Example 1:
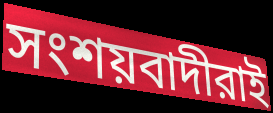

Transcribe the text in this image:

সংশয়বাদীরাই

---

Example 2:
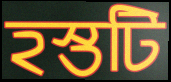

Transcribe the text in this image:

হস্তটি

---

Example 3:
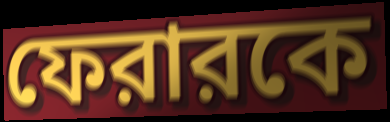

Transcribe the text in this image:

ফেরারকে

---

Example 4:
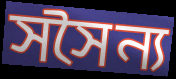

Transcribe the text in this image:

সসৈন্য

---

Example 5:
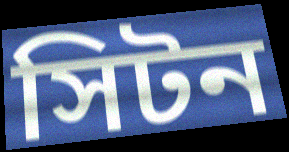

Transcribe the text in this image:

সিটন